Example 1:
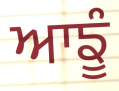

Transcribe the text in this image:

ਆਙੂੰ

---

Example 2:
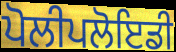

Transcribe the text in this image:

ਪੋਲੀਪਲੋਇਡੀ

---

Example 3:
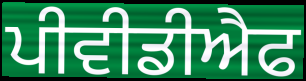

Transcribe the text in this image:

ਪੀਵੀਡੀਐਫ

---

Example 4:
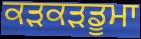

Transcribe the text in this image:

ਕੜਕੜਡੂਮਾ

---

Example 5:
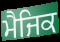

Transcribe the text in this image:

ਮੈਜਿਕ